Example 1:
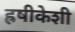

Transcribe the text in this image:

ह्रषीकेशी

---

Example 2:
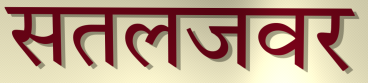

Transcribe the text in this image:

सतलजवर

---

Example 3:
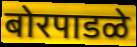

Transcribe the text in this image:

बोरपाडळे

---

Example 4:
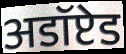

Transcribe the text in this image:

अडॉप्टेड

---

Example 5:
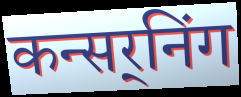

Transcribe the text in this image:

कन्सर्निंग